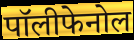
पॉलीफेनोल